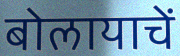
बोलायाचें